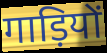
गाड़ियों